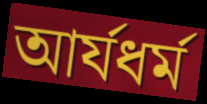
আর্যধর্ম